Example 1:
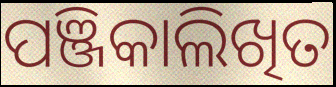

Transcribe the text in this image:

ପଞ୍ଜିକାଲିଖିତ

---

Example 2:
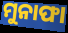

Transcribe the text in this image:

ମୁନାଫା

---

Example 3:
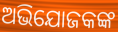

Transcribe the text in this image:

ଅଭିଯୋଜକଙ୍କ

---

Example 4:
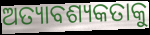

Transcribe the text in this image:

ଅତ୍ୟାବଶ୍ୟକତାକୁ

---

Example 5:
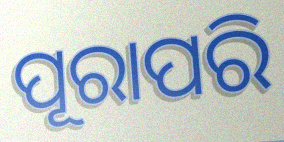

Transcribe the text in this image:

ପୂରାପରି